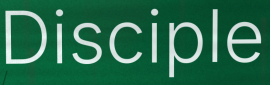
Disciple